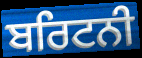
ਬਰਿਟਨੀ